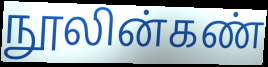
நூலின்கண்